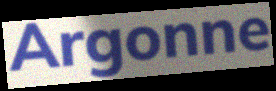
Argonne